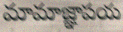
మామాజ్ఞాపయ